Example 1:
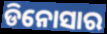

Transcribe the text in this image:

ଡିନୋସାର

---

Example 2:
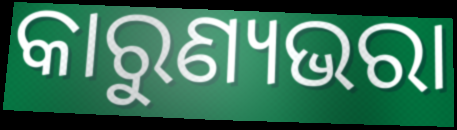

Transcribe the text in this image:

କାରୁଣ୍ୟଭରା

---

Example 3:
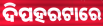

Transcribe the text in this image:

ଦିପହରଟାରେ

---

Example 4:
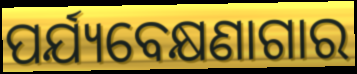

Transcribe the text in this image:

ପର୍ଯ୍ୟବେକ୍ଷଣାଗାର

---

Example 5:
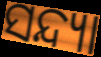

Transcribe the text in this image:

ସନ୍ଦ୍ୟା